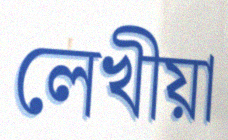
লেখীয়া